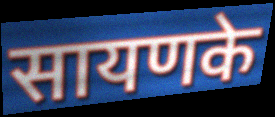
सायणके